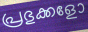
പ്രഭുക്കളോ